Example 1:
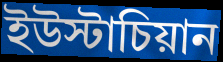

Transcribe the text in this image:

ইউস্টাচিয়ান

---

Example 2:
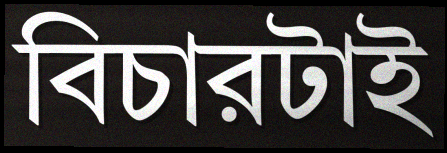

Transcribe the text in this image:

বিচারটাই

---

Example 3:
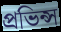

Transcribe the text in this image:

প্রভিন্স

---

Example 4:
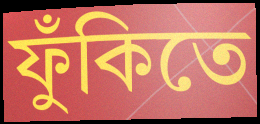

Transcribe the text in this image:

ফুঁকিতে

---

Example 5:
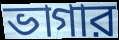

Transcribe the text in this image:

ভাগার